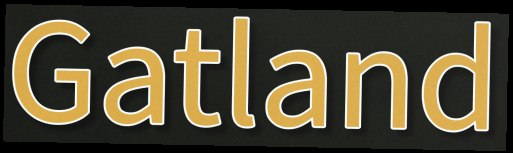
Gatland